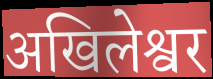
अखिलेश्वर